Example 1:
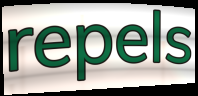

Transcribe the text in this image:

repels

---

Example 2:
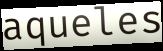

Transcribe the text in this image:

aqueles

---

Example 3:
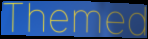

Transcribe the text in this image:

Themed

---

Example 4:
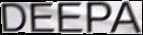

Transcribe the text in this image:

DEEPA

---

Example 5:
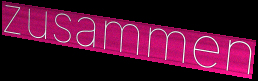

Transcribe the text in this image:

zusammen